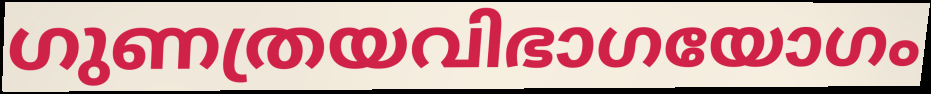
ഗുണത്രയവിഭാഗയോഗം